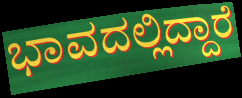
ಭಾವದಲ್ಲಿದ್ದಾರೆ